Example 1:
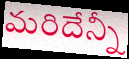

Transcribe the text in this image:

మరిదేన్నీ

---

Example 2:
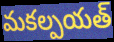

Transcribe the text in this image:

మకల్పయత్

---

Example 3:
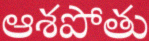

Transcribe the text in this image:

ఆశపోతు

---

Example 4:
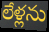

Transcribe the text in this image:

లేళ్లను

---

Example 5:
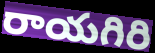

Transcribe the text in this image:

రాయగిరి